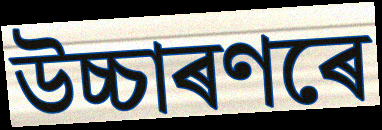
উচ্চাৰণৰে